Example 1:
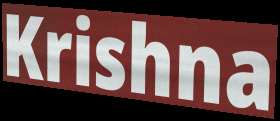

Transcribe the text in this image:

Krishna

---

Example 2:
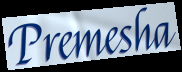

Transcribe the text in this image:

Premesha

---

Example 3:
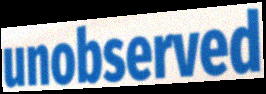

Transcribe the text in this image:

unobserved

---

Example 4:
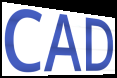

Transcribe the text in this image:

CAD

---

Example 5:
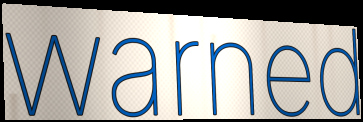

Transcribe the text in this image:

warned